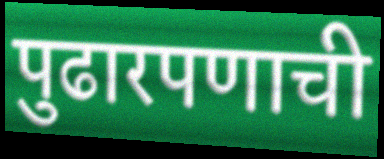
पुढारपणाची